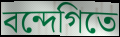
বন্দেগিতে